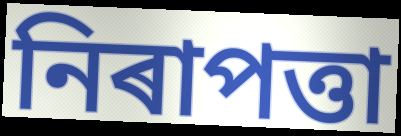
নিৰাপত্তা